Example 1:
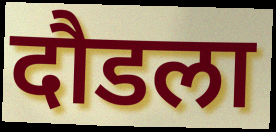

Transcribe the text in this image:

दौडला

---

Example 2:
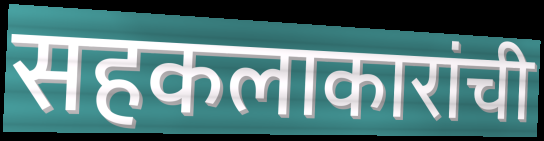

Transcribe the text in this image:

सहकलाकारांची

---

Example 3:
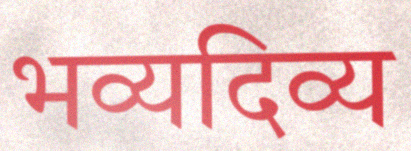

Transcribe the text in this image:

भव्यदिव्य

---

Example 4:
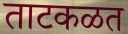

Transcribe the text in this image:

ताटकळत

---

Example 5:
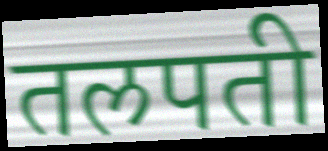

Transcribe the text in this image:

तलपती